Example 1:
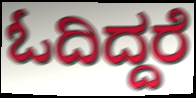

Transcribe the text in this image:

ಓದಿದ್ದರೆ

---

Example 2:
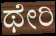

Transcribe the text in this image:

ಥೇರಿ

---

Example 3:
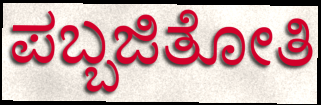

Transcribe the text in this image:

ಪಬ್ಬಜಿತೋತಿ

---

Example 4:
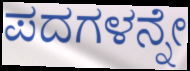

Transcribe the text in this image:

ಪದಗಳನ್ನೇ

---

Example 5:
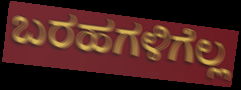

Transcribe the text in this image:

ಬರಹಗಳಿಗೆಲ್ಲ